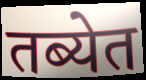
तब्येत